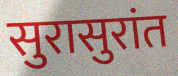
सुरासुरांत